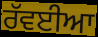
ਰੱਵਈਆ